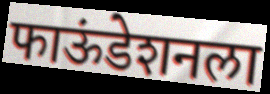
फाऊंडेशनला